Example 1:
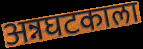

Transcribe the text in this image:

अन्नघटकाला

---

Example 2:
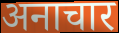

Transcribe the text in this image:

अनाचार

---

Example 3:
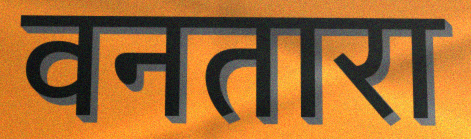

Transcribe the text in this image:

वनतारा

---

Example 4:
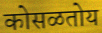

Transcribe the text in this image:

कोसळतोय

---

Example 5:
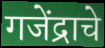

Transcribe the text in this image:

गजेंद्राचे